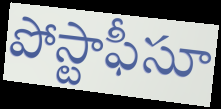
పోస్టాఫీసూ